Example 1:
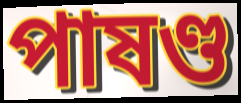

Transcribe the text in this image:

পাষণ্ড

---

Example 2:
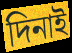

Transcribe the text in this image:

দিনাই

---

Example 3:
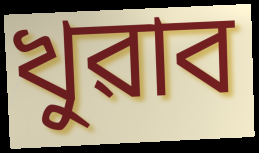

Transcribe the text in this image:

খুৱাব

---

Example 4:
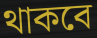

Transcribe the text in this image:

থাকবে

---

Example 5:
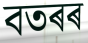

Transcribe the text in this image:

বতৰৰ